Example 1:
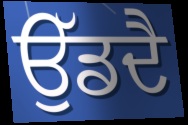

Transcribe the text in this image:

ਉੱਡਦੈ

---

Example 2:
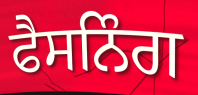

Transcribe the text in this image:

ਫੈਸਨਿੰਗ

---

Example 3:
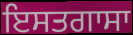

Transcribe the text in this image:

ਇਸਤਗਾਸਾ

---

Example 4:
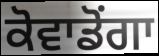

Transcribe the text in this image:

ਕੋਵਾਡੋਂਗਾ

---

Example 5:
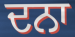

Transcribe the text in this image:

ਦਨਾ